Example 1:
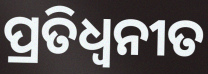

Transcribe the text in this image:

ପ୍ରତିଧ୍ବନୀତ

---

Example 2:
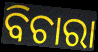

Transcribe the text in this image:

ବିଚାରା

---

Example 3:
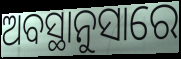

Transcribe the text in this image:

ଅବସ୍ଥାନୁସାରେ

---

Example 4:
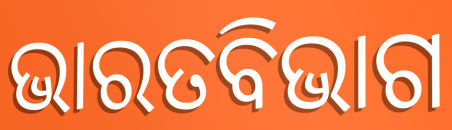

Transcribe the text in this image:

ଭାରତବିଭାଗ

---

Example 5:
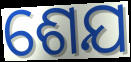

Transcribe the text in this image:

ଶେଯ